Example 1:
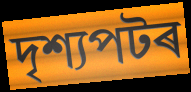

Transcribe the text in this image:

দৃশ্যপটৰ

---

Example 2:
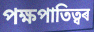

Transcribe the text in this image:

পক্ষপাতিত্বৰ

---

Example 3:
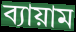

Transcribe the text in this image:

ব্যায়াম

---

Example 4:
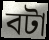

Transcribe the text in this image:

বটা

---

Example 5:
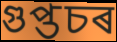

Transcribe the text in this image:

গুপ্তচৰ